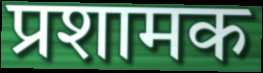
प्रशामक